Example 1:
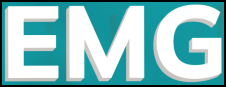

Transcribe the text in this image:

EMG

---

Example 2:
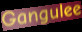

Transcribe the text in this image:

Gangulee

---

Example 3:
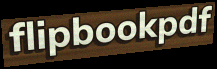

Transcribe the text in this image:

flipbookpdf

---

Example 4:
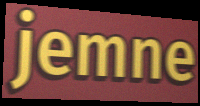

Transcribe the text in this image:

jemne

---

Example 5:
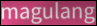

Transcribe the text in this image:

magulang